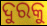
ଦୁରକୁ